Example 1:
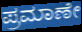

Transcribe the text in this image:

ಪ್ರಮಾಣೇ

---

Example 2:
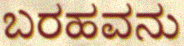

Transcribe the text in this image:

ಬರಹವನು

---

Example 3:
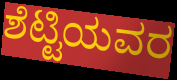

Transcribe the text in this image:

ಶೆಟ್ಟಿಯವರ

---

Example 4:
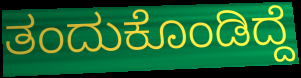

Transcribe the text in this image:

ತಂದುಕೊಂಡಿದ್ದೆ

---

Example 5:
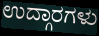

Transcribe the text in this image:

ಉದ್ಗಾರಗಳು